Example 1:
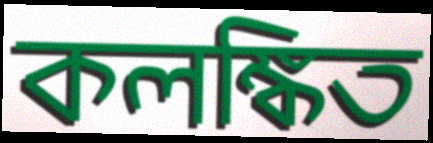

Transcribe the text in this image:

কলঙ্কিত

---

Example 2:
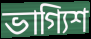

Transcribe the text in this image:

ভাগ্যিশ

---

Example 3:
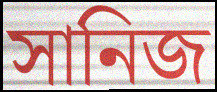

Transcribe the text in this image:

সানিজ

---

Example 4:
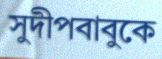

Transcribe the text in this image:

সুদীপবাবুকে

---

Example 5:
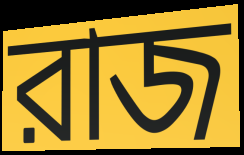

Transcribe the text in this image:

রাজ